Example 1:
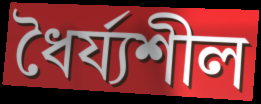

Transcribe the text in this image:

ধৈর্য্যশীল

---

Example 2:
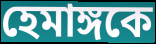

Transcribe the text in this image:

হেমাঙ্গকে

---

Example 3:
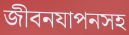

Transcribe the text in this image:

জীবনযাপনসহ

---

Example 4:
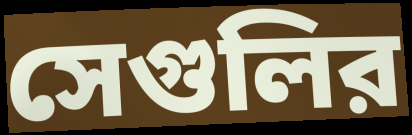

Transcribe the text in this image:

সেগুলির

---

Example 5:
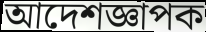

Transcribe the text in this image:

আদেশজ্ঞাপক